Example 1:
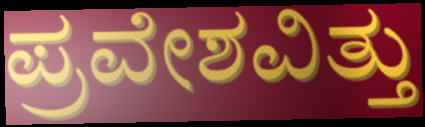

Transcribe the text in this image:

ಪ್ರವೇಶವಿತ್ತು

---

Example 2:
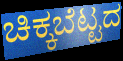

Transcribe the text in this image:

ಚಿಕ್ಕಬೆಟ್ಟದ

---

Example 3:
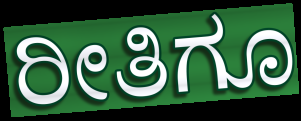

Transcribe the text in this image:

ರೀತಿಗೂ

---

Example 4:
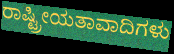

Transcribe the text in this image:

ರಾಷ್ಟ್ರೀಯತಾವಾದಿಗಳು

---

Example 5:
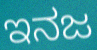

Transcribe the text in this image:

ಇನಜ